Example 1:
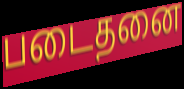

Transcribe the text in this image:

படைதனை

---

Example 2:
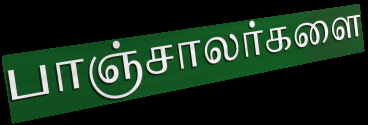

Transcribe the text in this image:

பாஞ்சாலர்களை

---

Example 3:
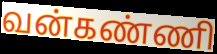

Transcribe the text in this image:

வன்கண்ணி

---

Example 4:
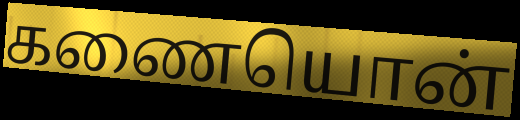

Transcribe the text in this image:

கணையொன்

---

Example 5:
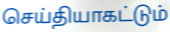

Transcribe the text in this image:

செய்தியாகட்டும்